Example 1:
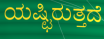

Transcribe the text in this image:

ಯಷ್ಟಿರುತ್ತದೆ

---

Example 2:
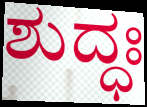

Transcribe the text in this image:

ಶುದ್ಧಃ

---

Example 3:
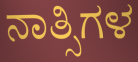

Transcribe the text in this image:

ನಾತ್ಸಿಗಳ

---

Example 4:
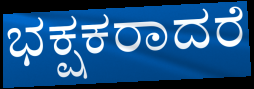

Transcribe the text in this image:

ಭಕ್ಷಕರಾದರೆ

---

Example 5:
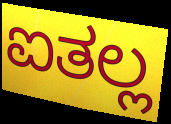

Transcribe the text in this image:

ಐತಲ್ಲ